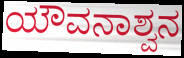
ಯೌವನಾಶ್ವನ